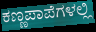
ಕಣ್ಣಪಾಪೆಗಳಲ್ಲಿ